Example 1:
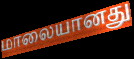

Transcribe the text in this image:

மாலையானது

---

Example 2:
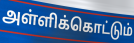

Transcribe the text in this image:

அள்ளிக்கொட்டும்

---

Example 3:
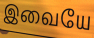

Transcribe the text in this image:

இவையே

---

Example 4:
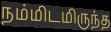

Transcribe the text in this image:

நம்மிடமிருந்த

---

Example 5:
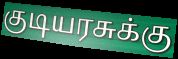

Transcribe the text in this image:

குடியரசுக்கு